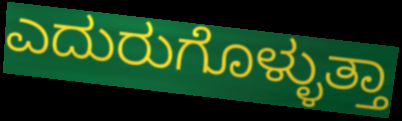
ಎದುರುಗೊಳ್ಳುತ್ತಾ